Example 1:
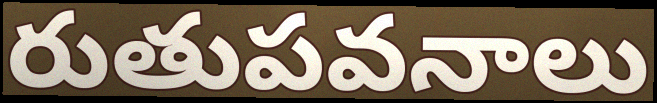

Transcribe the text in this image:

రుతుపవనాలు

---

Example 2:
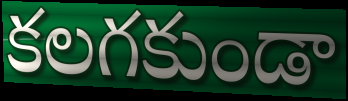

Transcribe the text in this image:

కలగకుండా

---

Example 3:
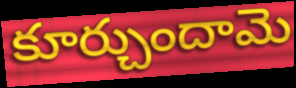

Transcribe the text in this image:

కూర్చుందామె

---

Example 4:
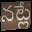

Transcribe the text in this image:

నట్లే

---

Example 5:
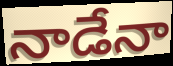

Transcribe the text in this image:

నాడేనా